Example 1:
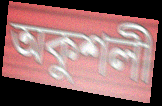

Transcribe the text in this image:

অকুশলী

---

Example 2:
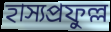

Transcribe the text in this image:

হাস্যপ্রফুল্ল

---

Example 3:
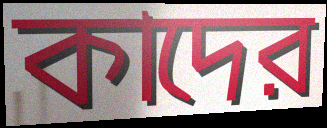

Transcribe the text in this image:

কাদের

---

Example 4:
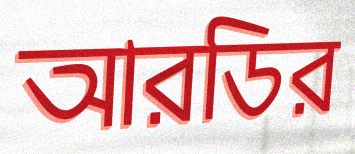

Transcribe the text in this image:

আরডির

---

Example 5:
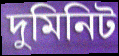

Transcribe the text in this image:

দুমিনিট